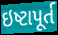
ઇષ્ટાપૂર્ત